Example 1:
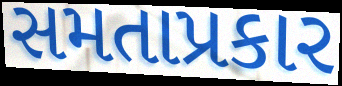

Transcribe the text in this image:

સમતાપ્રકાર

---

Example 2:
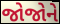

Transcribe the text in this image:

જોજોને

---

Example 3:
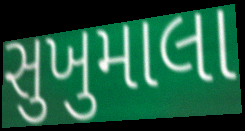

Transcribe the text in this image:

સુખુમાલા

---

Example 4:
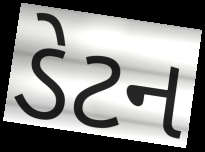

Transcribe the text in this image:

ડેટન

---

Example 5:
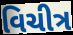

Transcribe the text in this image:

વિચીત્ર